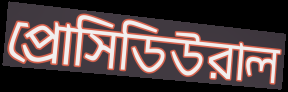
প্রোসিডিউরাল